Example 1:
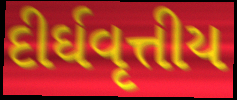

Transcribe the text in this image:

દીર્ઘવૃત્તીય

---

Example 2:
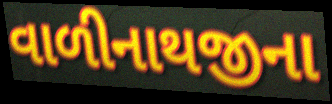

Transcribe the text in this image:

વાળીનાથજીના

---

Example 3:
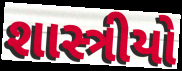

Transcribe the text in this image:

શાસ્ત્રીયો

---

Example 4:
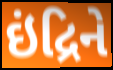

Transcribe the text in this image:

ઇંદ્રિને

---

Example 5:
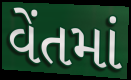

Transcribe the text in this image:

વેંતમાં